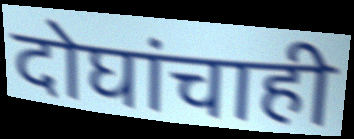
दोघांचाही